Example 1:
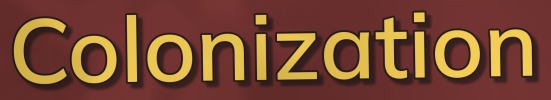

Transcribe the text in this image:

Colonization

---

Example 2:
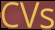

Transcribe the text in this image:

CVs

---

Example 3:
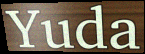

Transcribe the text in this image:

Yuda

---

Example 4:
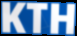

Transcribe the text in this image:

KTH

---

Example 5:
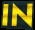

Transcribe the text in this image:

IN